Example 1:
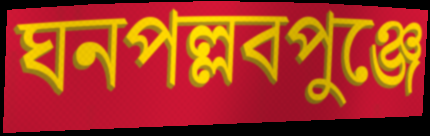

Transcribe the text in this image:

ঘনপল্লবপুঞ্জে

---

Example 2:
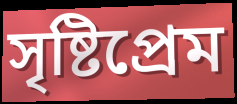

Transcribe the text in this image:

সৃষ্টিপ্রেম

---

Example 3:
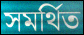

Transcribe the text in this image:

সমর্থিত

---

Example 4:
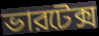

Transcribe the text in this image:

ভারটেক্স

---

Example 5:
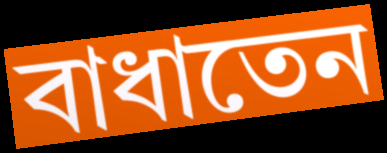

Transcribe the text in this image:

বাধাতেন